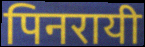
पिनरायी